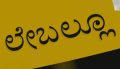
ಲೇಬಲ್ಲೂ